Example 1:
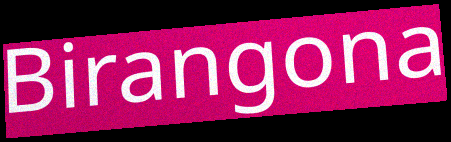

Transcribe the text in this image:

Birangona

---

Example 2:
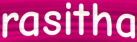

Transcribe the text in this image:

rasitha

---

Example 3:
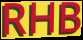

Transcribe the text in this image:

RHB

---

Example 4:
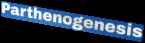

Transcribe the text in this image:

Parthenogenesis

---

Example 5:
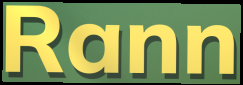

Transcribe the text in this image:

Rann